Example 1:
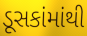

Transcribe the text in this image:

ડૂસકાંમાંથી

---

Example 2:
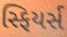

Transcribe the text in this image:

સ્ફિયર્સ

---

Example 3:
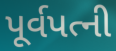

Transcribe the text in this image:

પૂર્વપત્ની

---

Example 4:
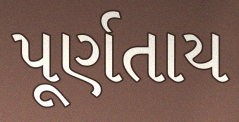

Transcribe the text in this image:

પૂર્ણતાય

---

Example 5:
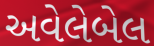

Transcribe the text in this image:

અવેલેબેલ